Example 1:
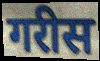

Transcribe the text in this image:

गरीस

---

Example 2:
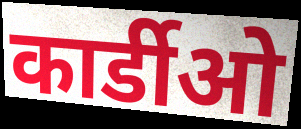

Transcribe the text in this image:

कार्डीओ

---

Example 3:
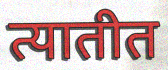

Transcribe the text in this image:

त्यातीत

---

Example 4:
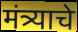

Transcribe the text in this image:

मंत्र्याचे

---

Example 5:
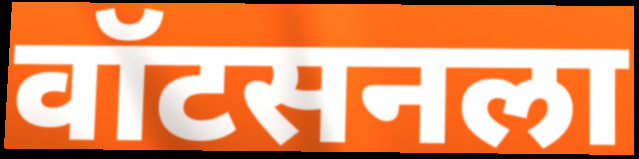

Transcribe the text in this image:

वॉटसनला